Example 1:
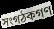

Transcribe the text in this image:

সংগঠকগণ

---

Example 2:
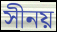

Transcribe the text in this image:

সীনয়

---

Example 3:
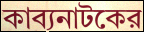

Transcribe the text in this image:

কাব্যনাটকের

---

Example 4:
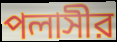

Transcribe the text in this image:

পলাসীর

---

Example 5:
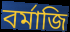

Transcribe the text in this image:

বর্মাজি